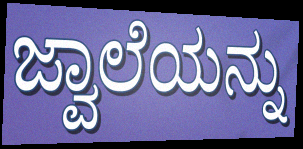
ಜ್ವಾಲೆಯನ್ನು